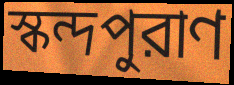
স্কন্দপুরাণ